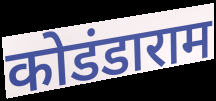
कोडंडाराम